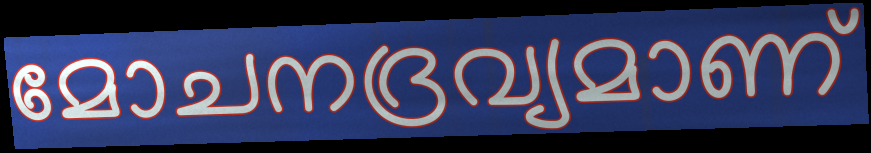
മോചനദ്രവ്യമാണ്